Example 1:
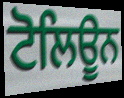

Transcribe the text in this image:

ਟੋਲਿਊਨ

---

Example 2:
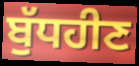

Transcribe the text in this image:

ਬੁੱਧਹੀਣ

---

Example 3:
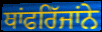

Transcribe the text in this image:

ਥਾਂਫਰਿੱਜਾਂਨੇ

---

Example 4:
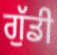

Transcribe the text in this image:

ਗੁੱਡੀ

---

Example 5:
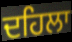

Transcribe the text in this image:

ਦਹਿਲਾ